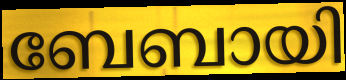
ബേബായി